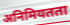
अनिमियतता